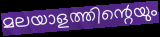
മലയാളത്തിന്റെയും